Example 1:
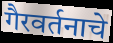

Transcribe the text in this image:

गैरवर्तनाचे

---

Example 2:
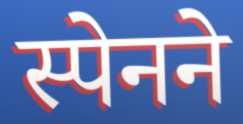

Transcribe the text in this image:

स्पेनने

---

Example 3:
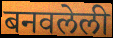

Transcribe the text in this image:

बनवलेली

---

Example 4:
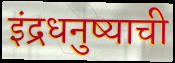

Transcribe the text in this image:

इंद्रधनुष्याची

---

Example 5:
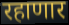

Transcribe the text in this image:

रहाणार